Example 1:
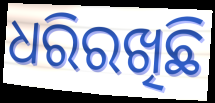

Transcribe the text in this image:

ଧରିରଖିଛି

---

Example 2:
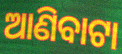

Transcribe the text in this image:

ଆଣିବାଟା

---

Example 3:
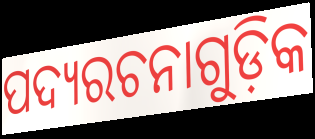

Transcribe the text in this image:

ପଦ୍ୟରଚନାଗୁଡ଼ିକ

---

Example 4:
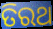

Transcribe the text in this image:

ତିରଥ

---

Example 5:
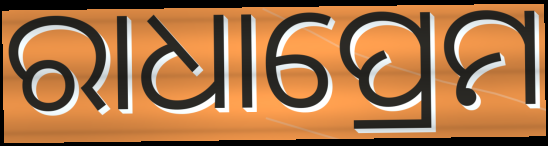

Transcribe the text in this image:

ରାଧାପ୍ରେମ